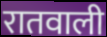
रातवाली